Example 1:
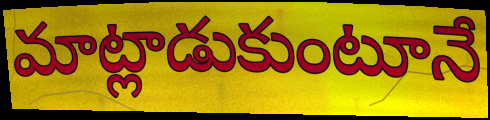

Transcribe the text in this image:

మాట్లాడుకుంటూనే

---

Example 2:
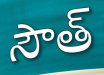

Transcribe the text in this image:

సౌత్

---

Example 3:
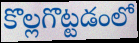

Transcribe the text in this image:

కొల్లగొట్టడంలో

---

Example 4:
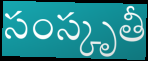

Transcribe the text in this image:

సంస్కృతీ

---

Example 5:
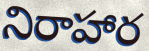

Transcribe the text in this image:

నిరాహార